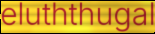
eluththugal